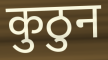
कुठुन